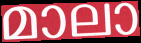
മാലാ